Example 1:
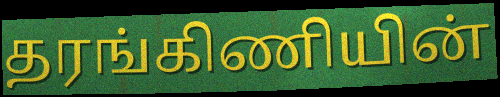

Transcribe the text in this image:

தரங்கிணியின்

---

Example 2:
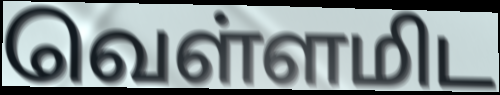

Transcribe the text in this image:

வெள்ளமிட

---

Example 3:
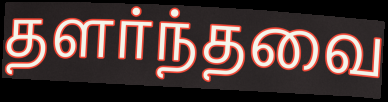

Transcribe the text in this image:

தளர்ந்தவை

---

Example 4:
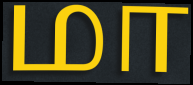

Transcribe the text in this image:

மா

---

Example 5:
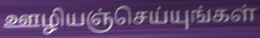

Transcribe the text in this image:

ஊழியஞ்செய்யுங்கள்